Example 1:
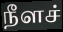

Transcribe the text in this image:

நீளச்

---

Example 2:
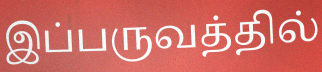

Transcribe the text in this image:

இப்பருவத்தில்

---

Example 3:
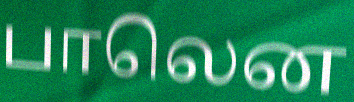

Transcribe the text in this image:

பாலென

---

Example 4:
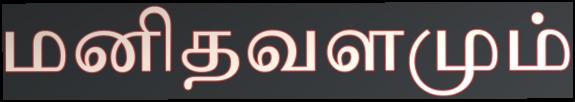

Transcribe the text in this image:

மனிதவளமும்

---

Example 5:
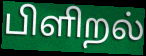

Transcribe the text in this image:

பிளிறல்